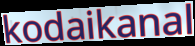
kodaikanal